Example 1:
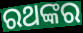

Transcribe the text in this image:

ରଥଙ୍କର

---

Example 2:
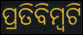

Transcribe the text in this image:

ପ୍ରତିବିମ୍ବଟି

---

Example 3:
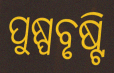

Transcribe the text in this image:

ପୁଷ୍ପବୃଷ୍ଟି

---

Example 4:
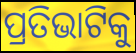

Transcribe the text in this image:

ପ୍ରତିଭାଟିକୁ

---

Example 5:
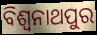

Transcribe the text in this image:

ବିଶ୍ଵନାଥପୁର